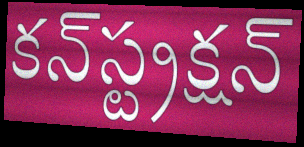
కన్‍స్ట్రక్షన్